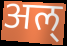
अल्